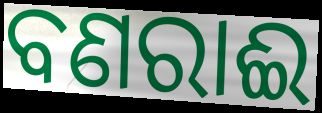
ବଣରାଈ